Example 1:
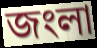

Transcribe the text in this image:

জংলা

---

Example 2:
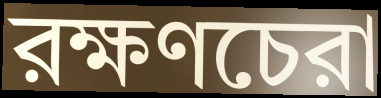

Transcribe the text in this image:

রক্ষণচেরা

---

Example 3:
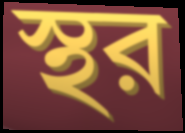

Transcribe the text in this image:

স্থর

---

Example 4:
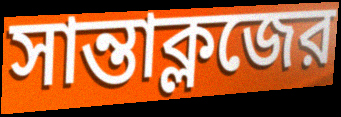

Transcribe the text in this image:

সান্তাক্লজের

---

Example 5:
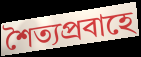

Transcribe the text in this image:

শৈত্যপ্রবাহে